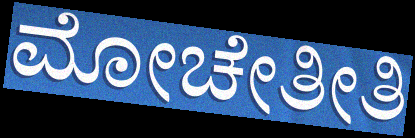
ಮೋಚೇತೀತಿ